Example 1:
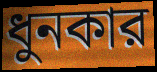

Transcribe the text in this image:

ধুনকার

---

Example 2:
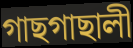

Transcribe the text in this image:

গাছগাছালী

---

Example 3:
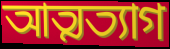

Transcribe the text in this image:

আত্মত্যাগ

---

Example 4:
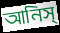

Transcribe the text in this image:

আনিস্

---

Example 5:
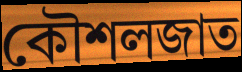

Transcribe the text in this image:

কৌশলজাত